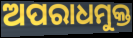
ଅପରାଧମୁକ୍ତ